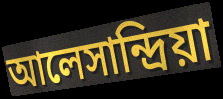
আলেসান্দ্রিয়া